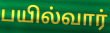
பயில்வார்